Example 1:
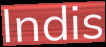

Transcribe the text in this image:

Indis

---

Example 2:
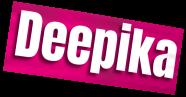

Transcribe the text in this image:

Deepika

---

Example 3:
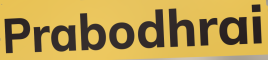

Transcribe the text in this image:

Prabodhrai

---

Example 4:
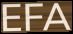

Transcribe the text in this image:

EFA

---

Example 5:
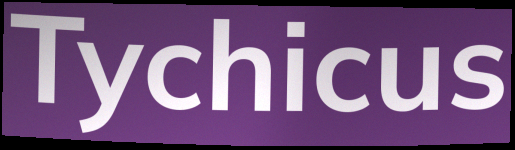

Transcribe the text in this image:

Tychicus